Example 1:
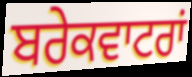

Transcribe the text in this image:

ਬਰੇਕਵਾਟਰਾਂ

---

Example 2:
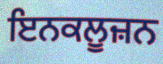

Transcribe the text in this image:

ਇਨਕਲੂਜ਼ਨ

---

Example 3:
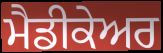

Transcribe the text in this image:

ਮੈਡੀਕੇਅਰ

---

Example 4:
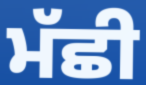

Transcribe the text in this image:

ਮੱਛੀ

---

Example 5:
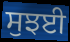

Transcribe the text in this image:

ਸੁਝਈ